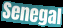
Senegal